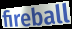
fireball